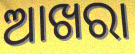
ଆଖରା